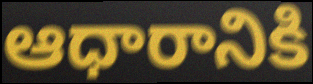
ఆధారానికి